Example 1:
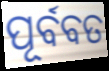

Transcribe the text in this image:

ପୂର୍ବବତ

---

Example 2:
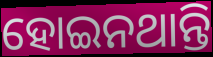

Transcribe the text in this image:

ହୋଇନଥାନ୍ତି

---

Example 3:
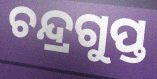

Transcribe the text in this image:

ଚନ୍ଦ୍ରଗୁପ୍ତ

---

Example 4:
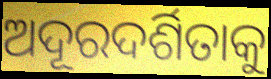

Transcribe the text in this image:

ଅଦୂରଦର୍ଶିତାକୁ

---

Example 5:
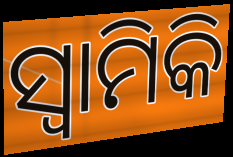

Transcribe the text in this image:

ସ୍ୱାମିକି